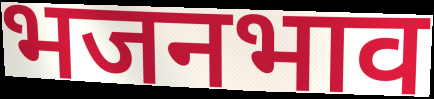
भजनभाव